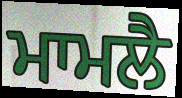
ਮਾਮਲੈ